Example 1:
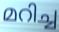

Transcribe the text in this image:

മറിച്ച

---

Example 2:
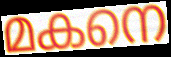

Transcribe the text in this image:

മകനെ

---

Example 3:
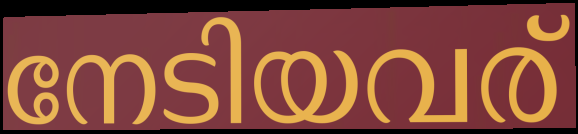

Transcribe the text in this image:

നേടിയവര്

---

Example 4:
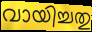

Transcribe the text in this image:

വായിച്ചതു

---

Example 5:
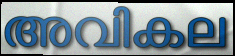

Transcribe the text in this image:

അവികല